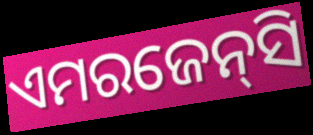
ଏମରଜେନ୍‌ସି